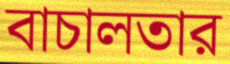
বাচালতার